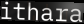
ithara